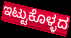
ಇಟ್ಟುಕೊಳ್ಳದ